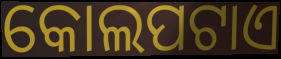
କୋଲପଟାଏ